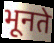
भूनते